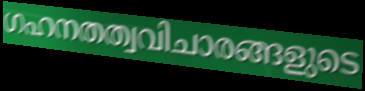
ഗഹനതത്വവിചാരങ്ങളുടെ